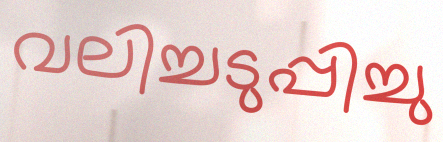
വലിച്ചടുപ്പിച്ചു